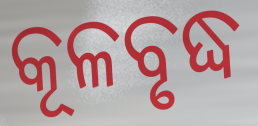
କୂଳବୃଦ୍ଧ